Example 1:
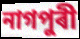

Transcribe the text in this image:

নাগপুৰী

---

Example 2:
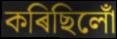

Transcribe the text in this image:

কৰিছিলোঁ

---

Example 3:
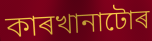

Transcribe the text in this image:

কাৰখানাটোৰ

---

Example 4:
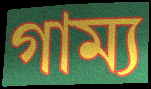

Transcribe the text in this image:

গাম্য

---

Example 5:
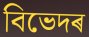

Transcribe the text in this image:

বিভেদৰ